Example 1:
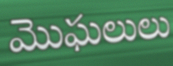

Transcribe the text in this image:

మొఘలులు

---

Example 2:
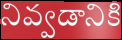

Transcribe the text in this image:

నివ్వడానికి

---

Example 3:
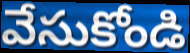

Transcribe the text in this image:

వేసుకోండి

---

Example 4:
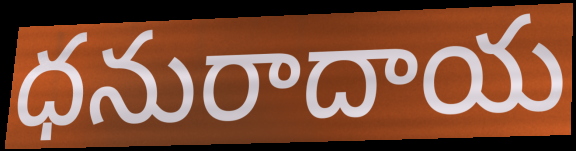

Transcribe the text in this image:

ధనురాదాయ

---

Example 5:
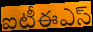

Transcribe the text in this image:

ఐటీఈఎస్